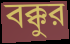
বক্কুর